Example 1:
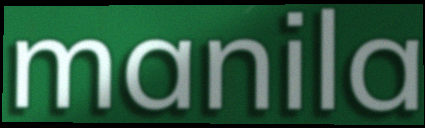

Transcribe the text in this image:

manila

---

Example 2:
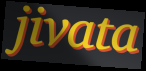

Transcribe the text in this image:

jivata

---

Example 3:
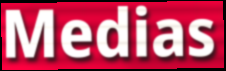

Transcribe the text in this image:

Medias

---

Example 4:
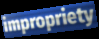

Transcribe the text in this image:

impropriety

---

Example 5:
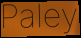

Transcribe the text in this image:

Paley